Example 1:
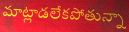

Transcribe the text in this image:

మాట్లాడలేకపోతున్నా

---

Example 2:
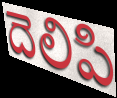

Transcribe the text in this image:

దెలిపి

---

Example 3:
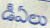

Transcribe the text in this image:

డీఏలు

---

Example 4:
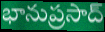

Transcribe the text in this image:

భానుప్రసాద్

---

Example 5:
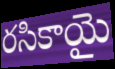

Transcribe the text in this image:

రసికాయై